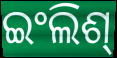
ଇଂଲିଶ୍